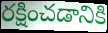
రక్షించడానికి